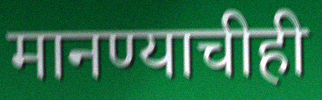
मानण्याचीही